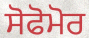
ਸੋਫੋਮੋਰ